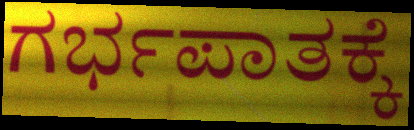
ಗರ್ಭಪಾತಕ್ಕೆ